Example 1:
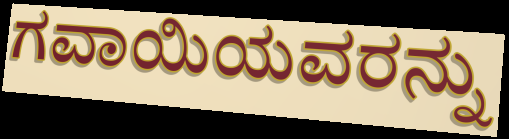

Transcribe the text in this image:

ಗವಾಯಿಯವರನ್ನು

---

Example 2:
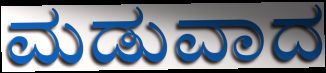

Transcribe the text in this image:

ಮಡುವಾದ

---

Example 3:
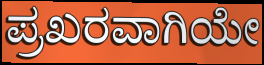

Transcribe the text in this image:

ಪ್ರಖರವಾಗಿಯೇ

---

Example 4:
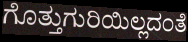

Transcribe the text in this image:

ಗೊತ್ತುಗುರಿಯಿಲ್ಲದಂತೆ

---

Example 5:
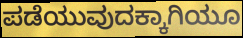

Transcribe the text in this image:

ಪಡೆಯುವುದಕ್ಕಾಗಿಯೂ